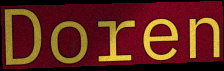
Doren